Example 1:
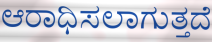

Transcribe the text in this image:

ಆರಾಧಿಸಲಾಗುತ್ತದೆ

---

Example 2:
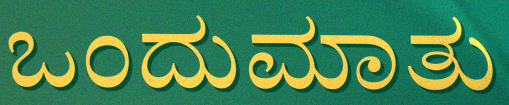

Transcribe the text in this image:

ಒಂದುಮಾತು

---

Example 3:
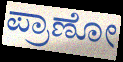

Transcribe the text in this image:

ಪ್ರಾಣೋ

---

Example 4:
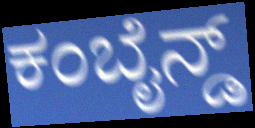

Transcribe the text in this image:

ಕಂಬೈನ್ಡ್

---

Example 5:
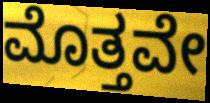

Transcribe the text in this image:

ಮೊತ್ತವೇ